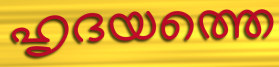
ഹൃദയത്തെ